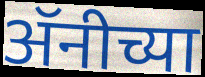
ॲनीच्या